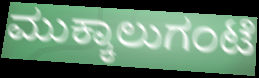
ಮುಕ್ಕಾಲುಗಂಟೆ